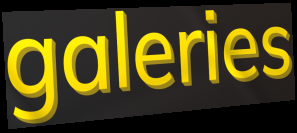
galeries